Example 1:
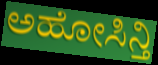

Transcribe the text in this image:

ಅಹೋಸಿನ್ತಿ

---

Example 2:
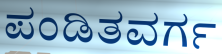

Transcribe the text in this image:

ಪಂಡಿತವರ್ಗ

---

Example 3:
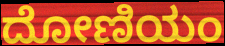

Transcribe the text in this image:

ದೋಣಿಯಂ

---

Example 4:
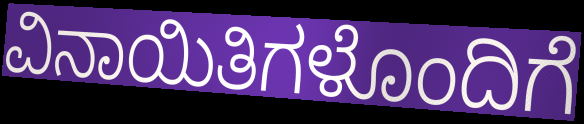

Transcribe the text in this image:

ವಿನಾಯಿತಿಗಳೊಂದಿಗೆ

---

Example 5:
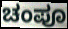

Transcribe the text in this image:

ಚಂಪೂ